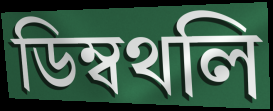
ডিম্বথলি